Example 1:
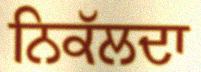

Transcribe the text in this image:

ਨਿਕੱਲਦਾ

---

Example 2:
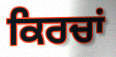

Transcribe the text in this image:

ਕਿਰਚਾਂ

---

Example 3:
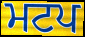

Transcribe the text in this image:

ਮਟਪ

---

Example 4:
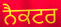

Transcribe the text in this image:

ਨੈਕਟਰ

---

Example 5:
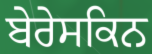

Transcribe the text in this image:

ਬੇਰੇਸਕਿਨ